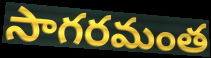
సాగరమంత